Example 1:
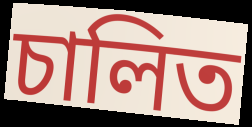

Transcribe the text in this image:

চালিত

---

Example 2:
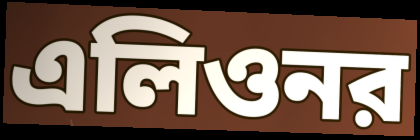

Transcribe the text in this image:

এলিওনর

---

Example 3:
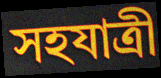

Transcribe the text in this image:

সহযাত্রী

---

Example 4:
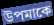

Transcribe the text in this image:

উপমাকে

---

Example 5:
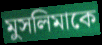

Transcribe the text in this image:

মুসলিমাকে